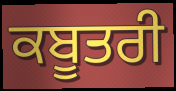
ਕਬੂਤਰੀ